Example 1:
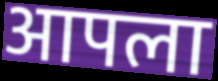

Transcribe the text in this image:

आपला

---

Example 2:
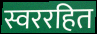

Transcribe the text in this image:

स्वररहित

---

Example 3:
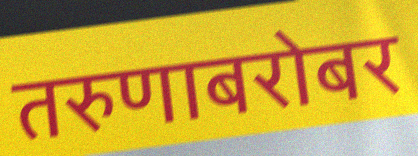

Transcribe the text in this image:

तरुणाबरोबर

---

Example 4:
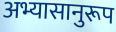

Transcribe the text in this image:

अभ्यासानुरूप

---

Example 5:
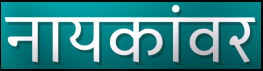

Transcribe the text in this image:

नायकांवर